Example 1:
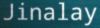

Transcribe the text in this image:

Jinalay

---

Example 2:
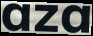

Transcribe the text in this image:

aza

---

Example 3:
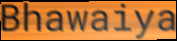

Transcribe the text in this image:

Bhawaiya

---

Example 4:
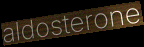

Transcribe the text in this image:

aldosterone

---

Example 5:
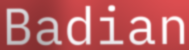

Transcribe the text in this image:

Badian